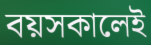
বয়সকালেই